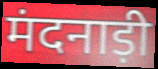
मंदनाड़ी